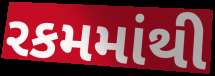
રકમમાંથી